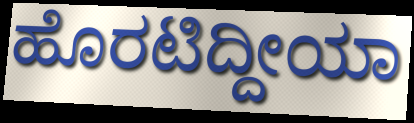
ಹೊರಟಿದ್ದೀಯಾ